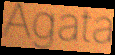
Agata